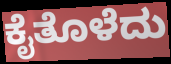
ಕೈತೊಳೆದು